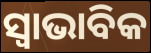
ସ୍ଵାଭାବିକ